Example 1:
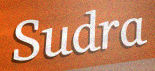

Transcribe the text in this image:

Sudra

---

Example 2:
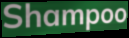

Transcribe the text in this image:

Shampoo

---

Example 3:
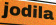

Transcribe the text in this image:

jodila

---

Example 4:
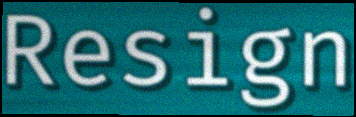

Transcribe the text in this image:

Resign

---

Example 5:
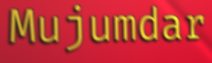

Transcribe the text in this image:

Mujumdar